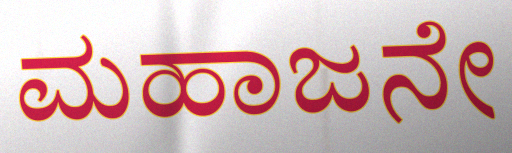
ಮಹಾಜನೇ